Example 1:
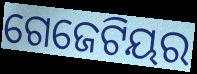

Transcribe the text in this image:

ଗେଜେଟିୟର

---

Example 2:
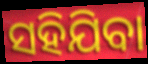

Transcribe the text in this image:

ସହିଯିବା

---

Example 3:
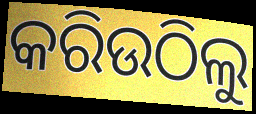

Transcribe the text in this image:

କରିଉଠିଲୁ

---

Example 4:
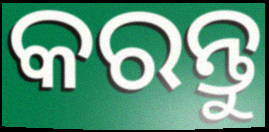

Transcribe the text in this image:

କରନ୍ତୁ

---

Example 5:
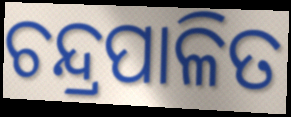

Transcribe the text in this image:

ଚନ୍ଦ୍ରପାଳିତ